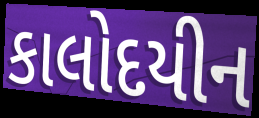
કાલોદયીન